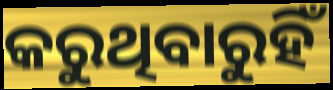
କରୁଥିବାରୁହିଁ